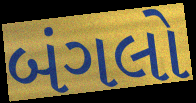
બંગલો